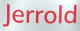
Jerrold